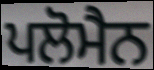
ਪਲੋਮੈਨ